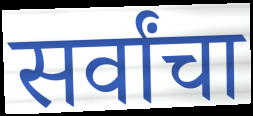
सर्वांचा